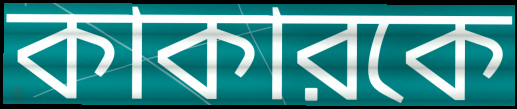
কাকারকে